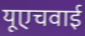
यूएचवाई